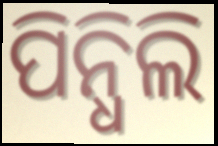
ପିନ୍ଧିଲି